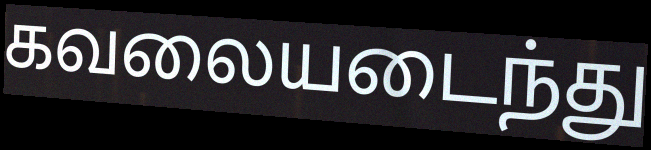
கவலையடைந்து